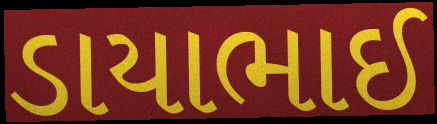
ડાયાભાઈ